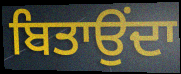
ਬਿਤਾਉਂਦਾ